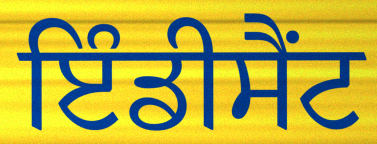
ਇੰਡੀਸੈਂਟ